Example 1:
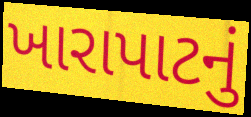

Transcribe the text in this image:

ખારાપાટનું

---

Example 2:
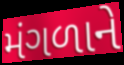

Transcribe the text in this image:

મંગળાને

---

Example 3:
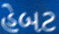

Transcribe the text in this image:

હેબટ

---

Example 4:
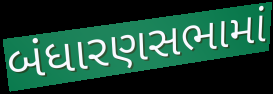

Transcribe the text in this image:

બંધારણસભામાં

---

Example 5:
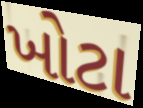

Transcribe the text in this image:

ખોટા